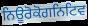
ਨਿਊਰੋਕੋਗਨਿਟਿਵ